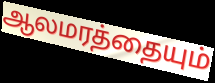
ஆலமரத்தையும்